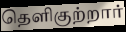
தெளிகுற்றார்